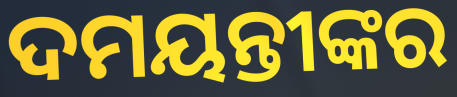
ଦମୟନ୍ତୀଙ୍କର